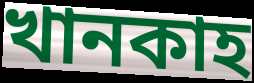
খানকাহ